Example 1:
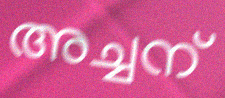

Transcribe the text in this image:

അച്ചന്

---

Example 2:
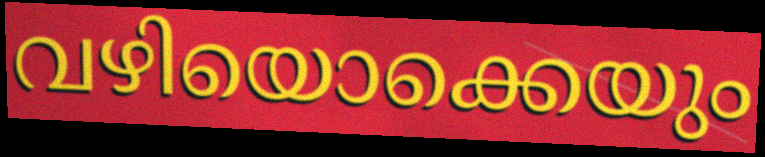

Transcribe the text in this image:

വഴിയൊക്കെയും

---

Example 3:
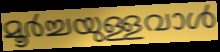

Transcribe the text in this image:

മൂർച്ചയുള്ളവാൾ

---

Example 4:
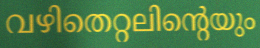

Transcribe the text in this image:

വഴിതെറ്റലിന്റെയും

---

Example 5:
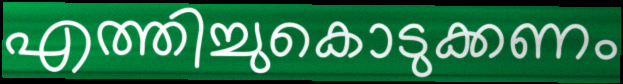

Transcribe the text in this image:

എത്തിച്ചുകൊടുക്കണം